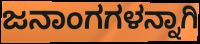
ಜನಾಂಗಗಳನ್ನಾಗಿ